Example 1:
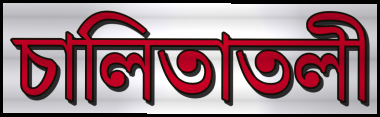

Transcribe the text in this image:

চালিতাতলী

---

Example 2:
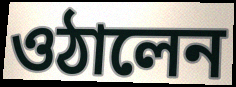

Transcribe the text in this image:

ওঠালেন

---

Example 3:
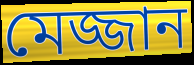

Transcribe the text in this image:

মেজ্জান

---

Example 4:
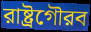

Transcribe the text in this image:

রাষ্ট্রগৌরব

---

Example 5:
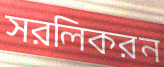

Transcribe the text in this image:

সরলিকরন